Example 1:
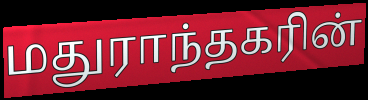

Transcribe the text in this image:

மதுராந்தகரின்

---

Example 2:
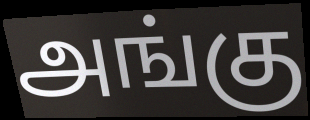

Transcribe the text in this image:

அங்கு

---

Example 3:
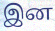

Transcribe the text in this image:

இன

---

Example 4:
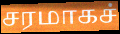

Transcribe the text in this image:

சரமாகச்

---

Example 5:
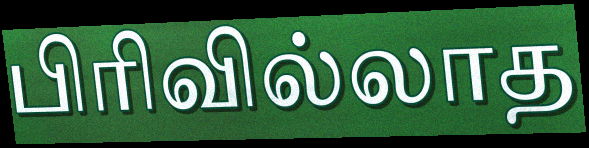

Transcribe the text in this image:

பிரிவில்லாத